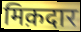
मिक़दार